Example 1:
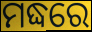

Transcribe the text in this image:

ମଦ୍ଧରେ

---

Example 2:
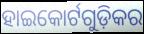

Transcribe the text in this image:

ହାଇକୋର୍ଟଗୁଡ଼ିକର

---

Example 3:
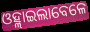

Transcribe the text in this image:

ଓହ୍ଲାଇଲାବେଳେ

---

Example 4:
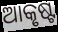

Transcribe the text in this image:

ଆକୃଷ୍ଟ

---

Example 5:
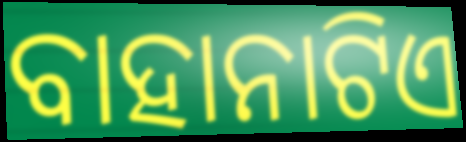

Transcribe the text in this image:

ବାହାନାଟିଏ